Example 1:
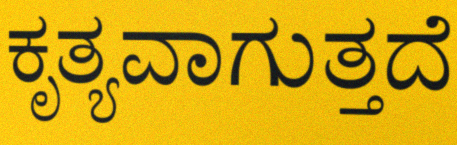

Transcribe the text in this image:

ಕೃತ್ಯವಾಗುತ್ತದೆ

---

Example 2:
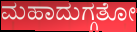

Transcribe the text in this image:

ಮಹಾದುಗ್ಗತೋ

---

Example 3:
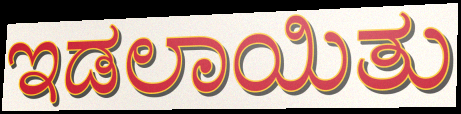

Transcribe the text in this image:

ಇಡಲಾಯಿತು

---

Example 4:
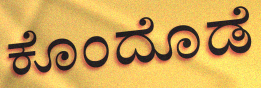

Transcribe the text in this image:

ಕೊಂದೊಡೆ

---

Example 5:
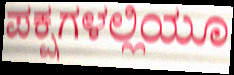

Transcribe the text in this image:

ಪಕ್ಷಗಳಲ್ಲಿಯೂ